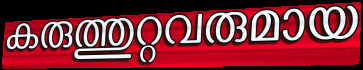
കരുത്തുറ്റവരുമായ